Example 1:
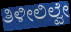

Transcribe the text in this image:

ತಿಳೀಲಿಲ್ವೇ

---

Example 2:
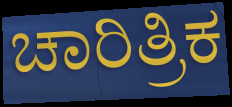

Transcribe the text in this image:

ಚಾರಿತ್ರಿಕ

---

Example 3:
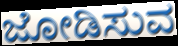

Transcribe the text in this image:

ಜೋಡಿಸುವ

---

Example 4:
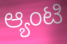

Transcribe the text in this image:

ಆ್ಯಂಟಿ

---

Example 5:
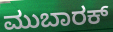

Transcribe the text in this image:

ಮುಬಾರಕ್